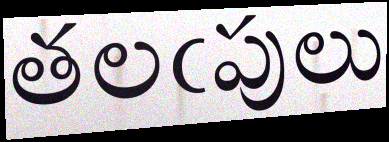
తలఁపులు